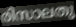
രിസാലതു